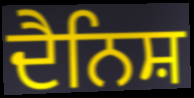
ਦੈਨਿਸ਼